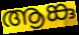
ആങ്കു